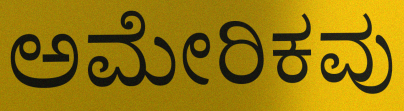
ಅಮೇರಿಕವು